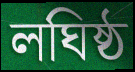
লঘিষ্ঠ